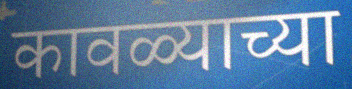
कावळ्याच्या